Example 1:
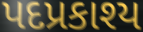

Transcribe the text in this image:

પદપ્રકાશ્ય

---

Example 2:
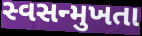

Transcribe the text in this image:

સ્વસન્મુખતા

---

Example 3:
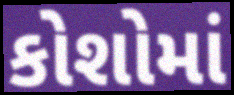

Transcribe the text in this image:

કોશોમાં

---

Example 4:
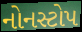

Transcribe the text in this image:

નોનસ્ટોપ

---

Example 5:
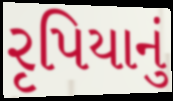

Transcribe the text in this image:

રૃપિયાનું